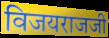
विजयराजजी